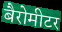
बैरोमीटर